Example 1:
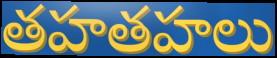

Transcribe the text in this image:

తహతహలు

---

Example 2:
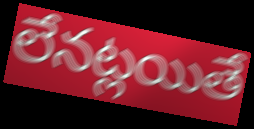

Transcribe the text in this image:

లేనట్లయితే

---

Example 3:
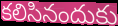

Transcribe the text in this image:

కలిసినందుకు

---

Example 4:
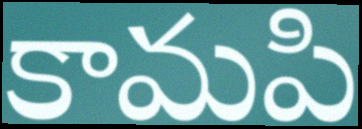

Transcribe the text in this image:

కామపి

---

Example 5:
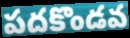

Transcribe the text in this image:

పదకొండవ